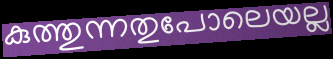
കുത്തുന്നതുപോലെയല്ല